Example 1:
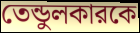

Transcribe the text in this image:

তেন্ডুলকারকে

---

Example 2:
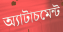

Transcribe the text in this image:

অ্যাটাচমেন্ট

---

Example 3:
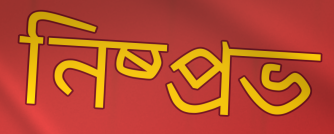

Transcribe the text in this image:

নিষ্প্রভ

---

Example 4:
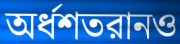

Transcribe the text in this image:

অর্ধশতরানও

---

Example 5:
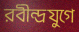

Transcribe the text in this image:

রবীন্দ্রযুগে